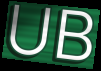
UB